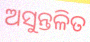
ଅସୁନ୍ତଳିତ